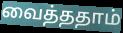
வைத்ததாம்